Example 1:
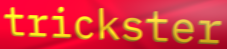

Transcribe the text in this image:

trickster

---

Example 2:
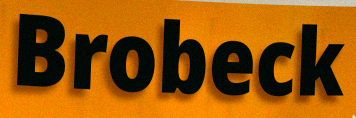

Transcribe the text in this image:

Brobeck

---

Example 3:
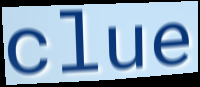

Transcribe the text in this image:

clue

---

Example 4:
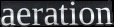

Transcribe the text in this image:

aeration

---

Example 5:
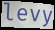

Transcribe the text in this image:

levy